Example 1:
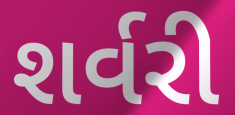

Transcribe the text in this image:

શર્વરી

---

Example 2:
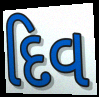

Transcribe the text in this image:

દિવ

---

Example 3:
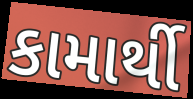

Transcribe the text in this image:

કામાર્થી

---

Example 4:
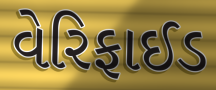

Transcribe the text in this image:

વેરિફાઈડ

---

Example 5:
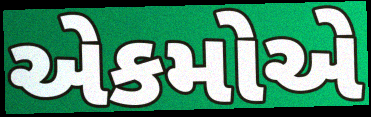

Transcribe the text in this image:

એકમોએ